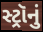
સ્ટ્રૉનું